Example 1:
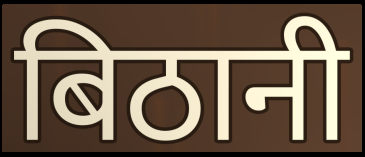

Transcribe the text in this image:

बिठानी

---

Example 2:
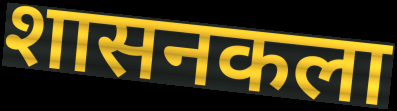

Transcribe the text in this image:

शासनकला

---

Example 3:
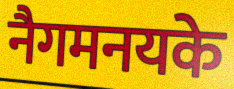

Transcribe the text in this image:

नैगमनयके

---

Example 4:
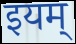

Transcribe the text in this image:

इयम्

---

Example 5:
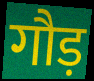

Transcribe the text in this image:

गौड़